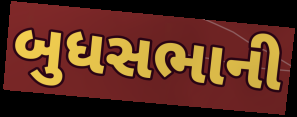
બુધસભાની